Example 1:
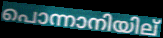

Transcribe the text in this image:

പൊന്നാനിയില്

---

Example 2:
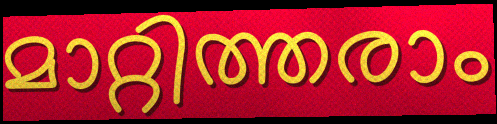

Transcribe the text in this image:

മാറ്റിത്തരാം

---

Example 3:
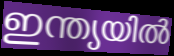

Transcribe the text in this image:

ഇന്ത്യയിൽ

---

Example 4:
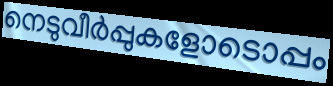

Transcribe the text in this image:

നെടുവീർപ്പുകളോടൊപ്പം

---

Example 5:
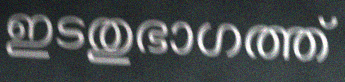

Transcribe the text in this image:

ഇടതുഭാഗത്ത്